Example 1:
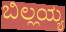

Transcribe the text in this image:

ಬಿಲ್ಲಯ್ಯ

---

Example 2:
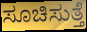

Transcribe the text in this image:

ಸೂಚಿಸುತ್ತೆ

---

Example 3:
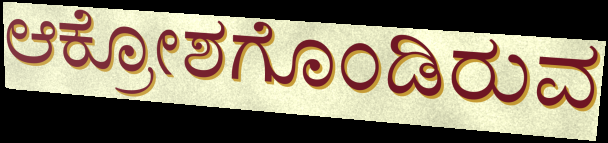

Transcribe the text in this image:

ಆಕ್ರೋಶಗೊಂಡಿರುವ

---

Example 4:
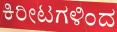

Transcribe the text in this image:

ಕಿರೀಟಗಳಿಂದ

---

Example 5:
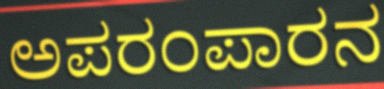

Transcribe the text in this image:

ಅಪರಂಪಾರನ